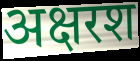
अक्षरश